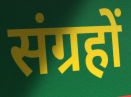
संग्रहों